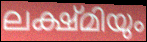
ലക്ഷ്മിയും